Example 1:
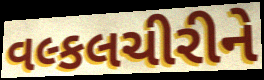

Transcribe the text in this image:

વલ્કલચીરીને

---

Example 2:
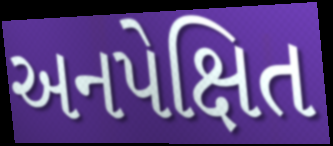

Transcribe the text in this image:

અનપેક્ષિત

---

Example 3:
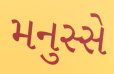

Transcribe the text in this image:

મનુસ્સે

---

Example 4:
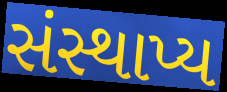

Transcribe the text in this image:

સંસ્થાપ્ય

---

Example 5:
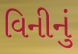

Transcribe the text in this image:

વિનીનું